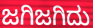
ಜಗಿಜಗಿದು